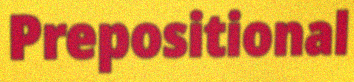
Prepositional